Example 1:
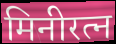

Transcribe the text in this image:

मिनीरत्न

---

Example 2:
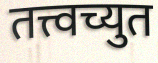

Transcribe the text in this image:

तत्त्वच्युत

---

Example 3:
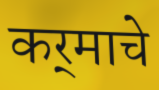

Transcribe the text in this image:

कर्माचे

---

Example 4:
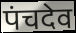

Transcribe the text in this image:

पंचदेव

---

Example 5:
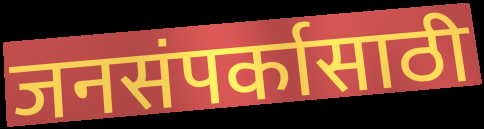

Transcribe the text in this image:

जनसंपर्कासाठी